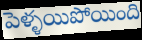
పెళ్ళయిపోయింది